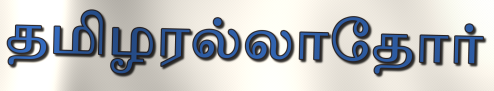
தமிழரல்லாதோர்